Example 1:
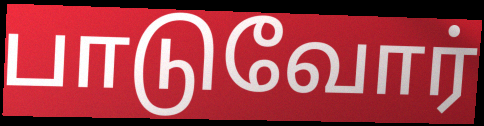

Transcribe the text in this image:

பாடுவோர்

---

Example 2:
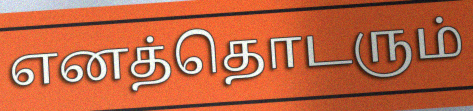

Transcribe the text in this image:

எனத்தொடரும்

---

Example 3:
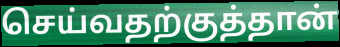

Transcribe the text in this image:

செய்வதற்குத்தான்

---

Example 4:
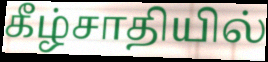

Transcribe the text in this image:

கீழ்சாதியில்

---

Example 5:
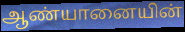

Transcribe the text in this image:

ஆண்யானையின்